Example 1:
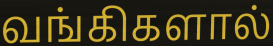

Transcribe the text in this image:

வங்கிகளால்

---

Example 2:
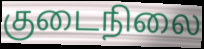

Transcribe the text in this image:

குடைநிலை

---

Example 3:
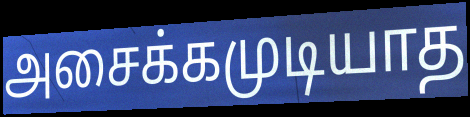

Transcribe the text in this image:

அசைக்கமுடியாத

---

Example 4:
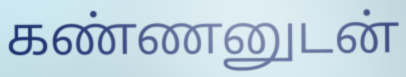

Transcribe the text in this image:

கண்ணனுடன்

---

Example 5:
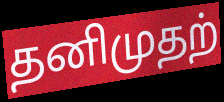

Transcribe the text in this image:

தனிமுதற்